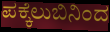
ಪಕ್ಕೆಲುಬಿನಿಂದ